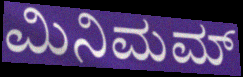
ಮಿನಿಮಮ್